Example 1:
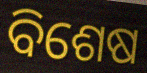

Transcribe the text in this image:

ବିଶେଷ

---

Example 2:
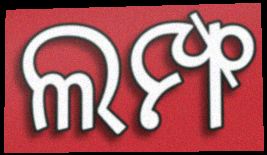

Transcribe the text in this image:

ଲମ୍ଫ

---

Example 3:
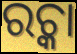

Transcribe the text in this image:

ରଚ୍କା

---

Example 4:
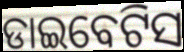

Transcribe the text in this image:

ଡାଇବେଟିସ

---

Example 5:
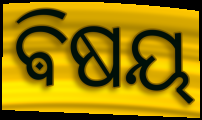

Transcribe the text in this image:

ଵିଷୟ